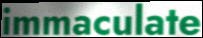
immaculate